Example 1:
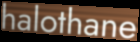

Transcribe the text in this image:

halothane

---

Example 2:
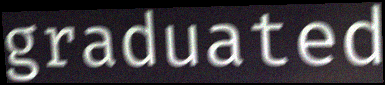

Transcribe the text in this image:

graduated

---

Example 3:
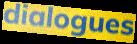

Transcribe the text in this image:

dialogues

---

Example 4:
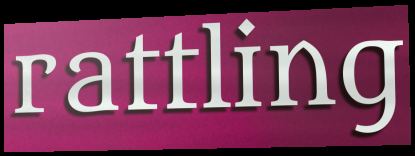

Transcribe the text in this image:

rattling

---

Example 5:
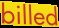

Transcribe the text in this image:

billed